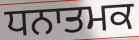
ਧਨਾਤਮਕ